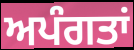
ਅਪੰਗਤਾਂ